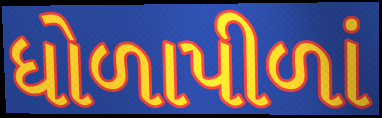
ધોળાપીળાં